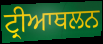
ਟ੍ਰੀਆਥਲਨ